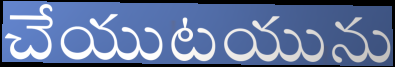
చేయుటయును